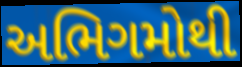
અભિગમોથી